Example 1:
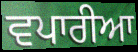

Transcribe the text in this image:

ਵਪਾਰੀਆ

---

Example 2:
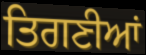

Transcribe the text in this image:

ਤਿਗਣੀਆਂ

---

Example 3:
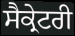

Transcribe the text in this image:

ਸੈਕ੍ਰੇਟਰੀ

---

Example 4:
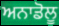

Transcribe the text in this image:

ਅਨਾਡੋਲੂ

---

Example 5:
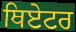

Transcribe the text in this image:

ਥਿਏਟਰ